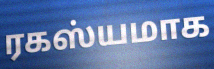
ரகஸ்யமாக